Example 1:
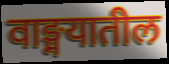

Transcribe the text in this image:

वाङ्मयातील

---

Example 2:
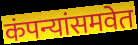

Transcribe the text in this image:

कंपन्यांसमवेत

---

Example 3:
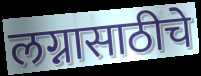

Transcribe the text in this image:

लग्नासाठीचे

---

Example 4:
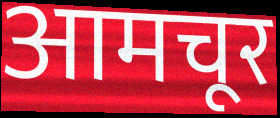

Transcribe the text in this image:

आमचूर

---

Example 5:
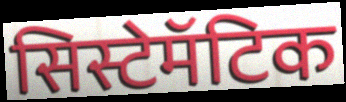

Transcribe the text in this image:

सिस्टेमॅटिक